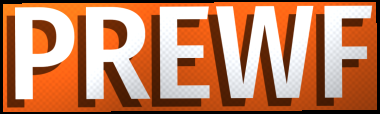
PREWF